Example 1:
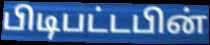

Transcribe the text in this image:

பிடிபட்டபின்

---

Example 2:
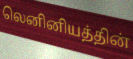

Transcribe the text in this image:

லெனினியத்தின்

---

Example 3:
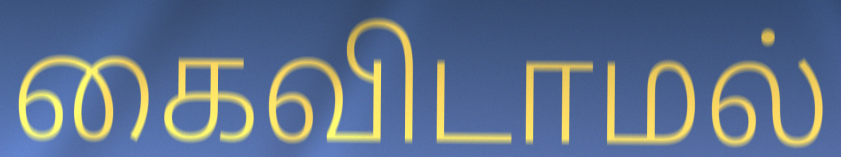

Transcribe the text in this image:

கைவிடாமல்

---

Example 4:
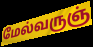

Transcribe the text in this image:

மேல்வருஞ்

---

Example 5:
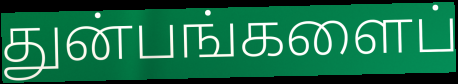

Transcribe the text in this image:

துன்பங்களைப்